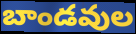
బాండవుల